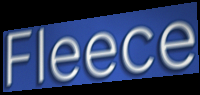
Fleece